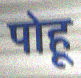
पोहू